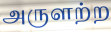
அருளற்ற